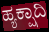
ಹ್ಯಕ್ಷಾದಿ